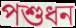
পশুধন